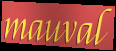
mauval